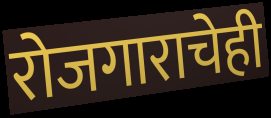
रोजगाराचेही